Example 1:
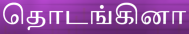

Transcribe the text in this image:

தொடங்கினா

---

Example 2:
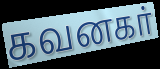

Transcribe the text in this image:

கவனகர்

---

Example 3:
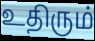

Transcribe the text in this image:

உதிரும்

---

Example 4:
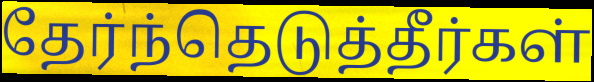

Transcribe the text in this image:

தேர்ந்தெடுத்தீர்கள்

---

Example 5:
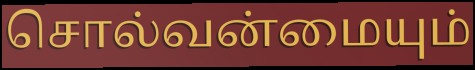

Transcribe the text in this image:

சொல்வன்மையும்